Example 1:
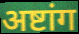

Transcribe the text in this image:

अष्टांग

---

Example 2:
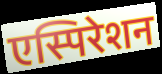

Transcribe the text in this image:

एस्पिरेशन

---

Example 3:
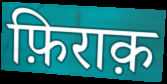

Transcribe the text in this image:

फ़िराक़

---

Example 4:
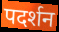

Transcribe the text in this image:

पदर्शन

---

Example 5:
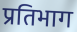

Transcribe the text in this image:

प्रतिभाग